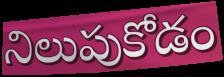
నిలుపుకోడం